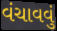
વંચાવવું